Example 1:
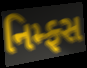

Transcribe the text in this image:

નિમ્ફ્સ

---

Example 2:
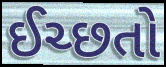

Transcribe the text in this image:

ઈચ્છતો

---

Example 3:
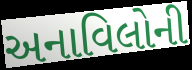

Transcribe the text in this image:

અનાવિલોની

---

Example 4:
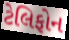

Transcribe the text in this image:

ટેલિફોન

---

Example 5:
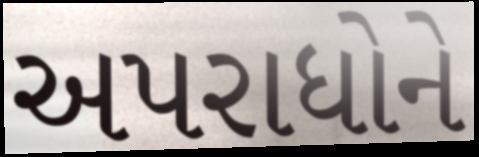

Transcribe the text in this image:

અપરાધોને